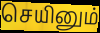
செயினும்